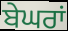
ਬੇਘਰਾਂ